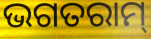
ଭଗତରାମ୍